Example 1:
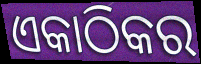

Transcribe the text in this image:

ଏକାଠିକର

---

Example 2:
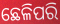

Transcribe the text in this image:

ଛେଳିପରି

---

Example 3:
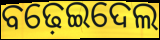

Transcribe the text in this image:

ବଢ଼େଇଦେଲ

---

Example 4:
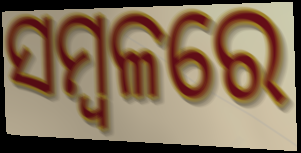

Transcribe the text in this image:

ସମ୍ବଳରେ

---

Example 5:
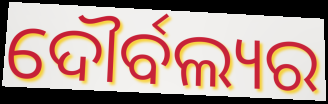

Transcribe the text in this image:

ଦୌର୍ବଲ୍ୟର